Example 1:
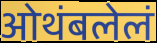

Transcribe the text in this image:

ओथंबलेलं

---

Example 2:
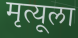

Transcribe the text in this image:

मृत्यूला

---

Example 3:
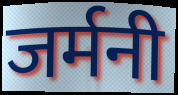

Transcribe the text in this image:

जर्मनी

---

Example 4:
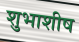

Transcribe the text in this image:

शुभाशीष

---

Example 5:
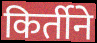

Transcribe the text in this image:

किर्तीने